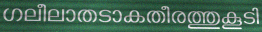
ഗലീലാതടാകതീരത്തുകൂടി